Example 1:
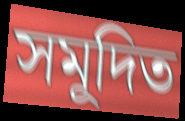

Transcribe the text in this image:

সমূদিত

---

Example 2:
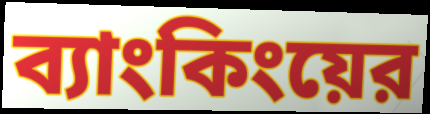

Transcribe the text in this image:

ব্যাংকিংয়ের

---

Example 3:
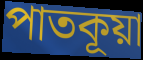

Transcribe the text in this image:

পাতকূয়া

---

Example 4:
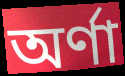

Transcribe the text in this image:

অর্ণা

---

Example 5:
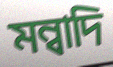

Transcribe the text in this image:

মন্বাদি